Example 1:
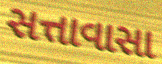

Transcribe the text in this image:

સત્તાવાસા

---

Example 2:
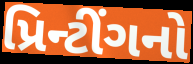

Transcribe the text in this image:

પ્રિન્ટીંગનો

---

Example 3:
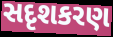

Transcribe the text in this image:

સદૃશકરણ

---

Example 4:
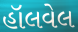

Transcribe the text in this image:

હૉલવેલ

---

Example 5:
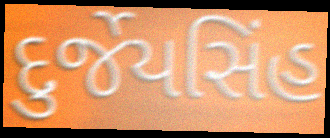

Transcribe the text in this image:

દુર્જેયસિંહ